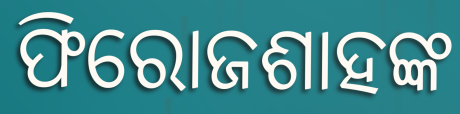
ଫିରୋଜଶାହଙ୍କ